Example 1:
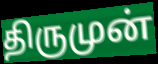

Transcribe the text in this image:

திருமுன்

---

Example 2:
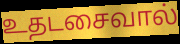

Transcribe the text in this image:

உதடசைவால்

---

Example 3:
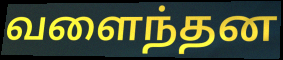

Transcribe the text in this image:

வளைந்தன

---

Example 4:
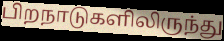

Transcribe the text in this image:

பிறநாடுகளிலிருந்து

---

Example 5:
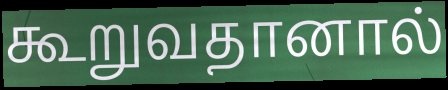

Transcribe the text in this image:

கூறுவதானால்